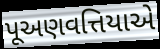
પૂઅણવત્તિયાએ